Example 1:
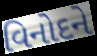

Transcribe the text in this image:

વિનોદને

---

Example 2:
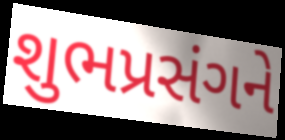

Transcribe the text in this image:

શુભપ્રસંગને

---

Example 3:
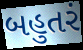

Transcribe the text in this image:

બહુતરં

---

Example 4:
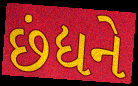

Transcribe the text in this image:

છંદ્યને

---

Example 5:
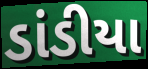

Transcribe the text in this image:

ડાંડીયા